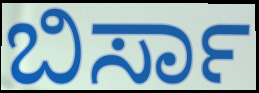
ಬಿರ್ಸಾ